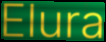
Elura